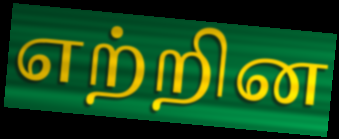
எற்றின